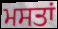
ਮਸਤਾਂ